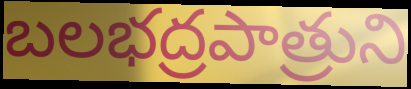
బలభద్రపాత్రుని